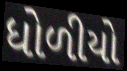
ધોળીયો